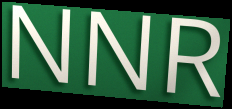
NNR